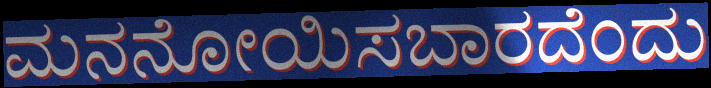
ಮನನೋಯಿಸಬಾರದೆಂದು